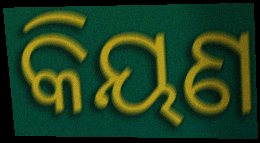
କିୟଣ